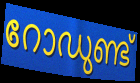
റോഡുണ്ട്